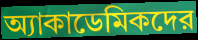
অ্যাকাডেমিকদের